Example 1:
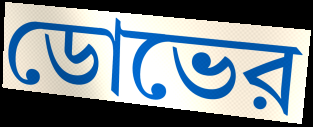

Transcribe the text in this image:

ডোভের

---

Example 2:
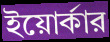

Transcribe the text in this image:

ইয়োর্কার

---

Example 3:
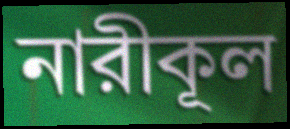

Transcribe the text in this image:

নারীকূল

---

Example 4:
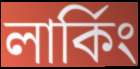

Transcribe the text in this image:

লার্কিং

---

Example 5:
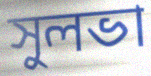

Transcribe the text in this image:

সুলভা